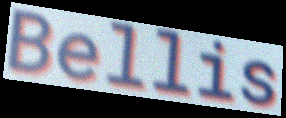
Bellis